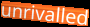
unrivalled